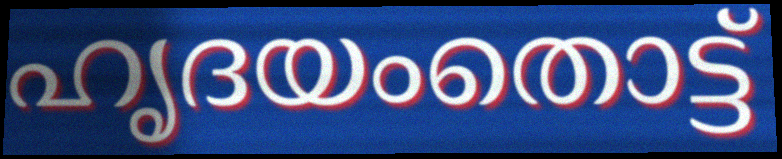
ഹൃദയംതൊട്ട്